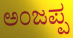
ಅಂಜಪ್ಪ